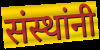
संस्थांनी